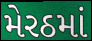
મેરઠમાં